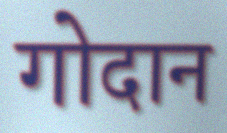
गोदान